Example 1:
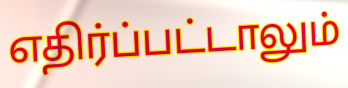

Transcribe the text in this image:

எதிர்ப்பட்டாலும்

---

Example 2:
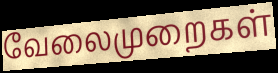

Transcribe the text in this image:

வேலைமுறைகள்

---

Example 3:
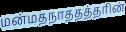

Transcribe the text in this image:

மன்மதநாததத்தரின்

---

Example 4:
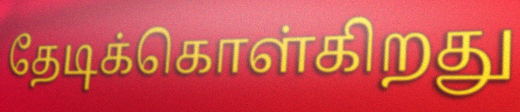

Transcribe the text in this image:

தேடிக்கொள்கிறது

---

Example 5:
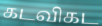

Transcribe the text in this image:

கடவிகட